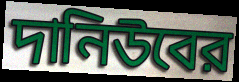
দানিউবের